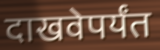
दाखवेपर्यंत